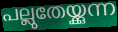
പല്ലുതേയ്ക്കുന്ന